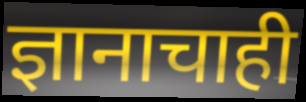
ज्ञानाचाही